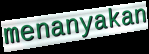
menanyakan